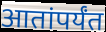
आतांपर्यंत